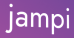
jampi